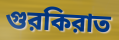
গুরকিরাত